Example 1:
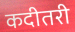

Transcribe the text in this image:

कदीतरी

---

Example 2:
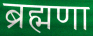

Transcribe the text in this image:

ब्रह्मणा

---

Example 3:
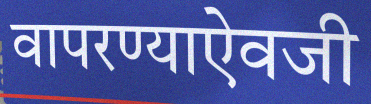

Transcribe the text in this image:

वापरण्याऐवजी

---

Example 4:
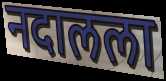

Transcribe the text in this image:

नदालला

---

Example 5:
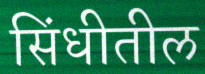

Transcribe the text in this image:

सिंधीतील